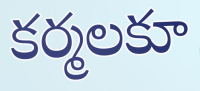
కర్మలకూ